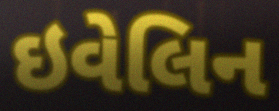
ઇવેલિન